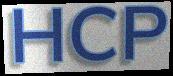
HCP